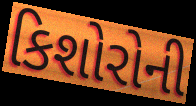
કિશોરોની